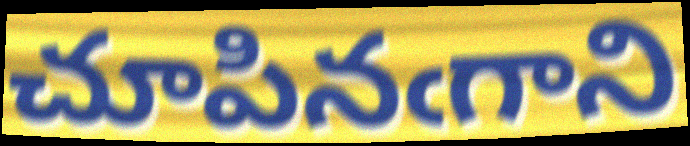
చూపినఁగాని